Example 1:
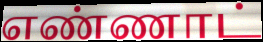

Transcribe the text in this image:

எண்ணாட்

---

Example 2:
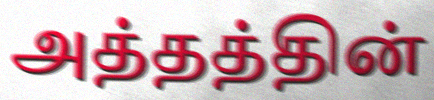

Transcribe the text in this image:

அத்தத்தின்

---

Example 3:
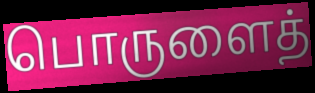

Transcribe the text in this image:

பொருளைத்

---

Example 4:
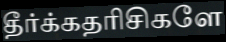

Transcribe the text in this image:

தீர்க்கதரிசிகளே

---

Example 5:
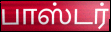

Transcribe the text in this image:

பாஸ்டர்